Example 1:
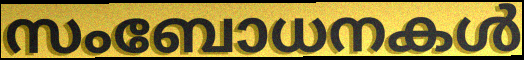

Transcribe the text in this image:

സംബോധനകൾ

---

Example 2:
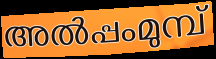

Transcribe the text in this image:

അൽപ്പംമുമ്പ്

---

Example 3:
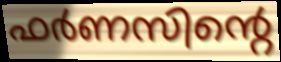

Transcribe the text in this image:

ഫർണസിന്റെ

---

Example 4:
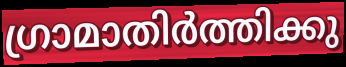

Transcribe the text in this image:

ഗ്രാമാതിർത്തിക്കു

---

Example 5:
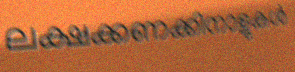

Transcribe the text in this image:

ലക്ഷക്കണക്കിനാളുകൾ